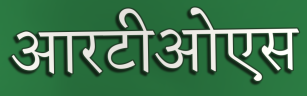
आरटीओएस